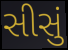
સીસું